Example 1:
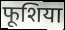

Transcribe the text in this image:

फूशिया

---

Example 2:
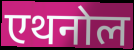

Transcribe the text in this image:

एथनोल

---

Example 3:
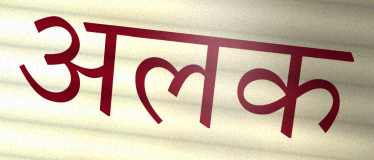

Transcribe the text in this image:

अलक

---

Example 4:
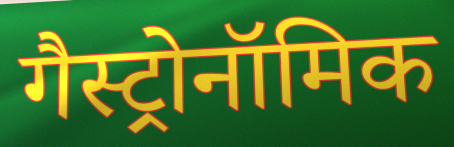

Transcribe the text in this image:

गैस्ट्रोनॉमिक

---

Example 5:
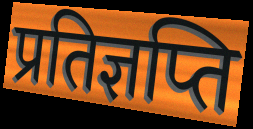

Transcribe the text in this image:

प्रतिज्ञप्ति